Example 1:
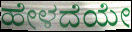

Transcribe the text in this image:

ಹೇಳದೆಯೇ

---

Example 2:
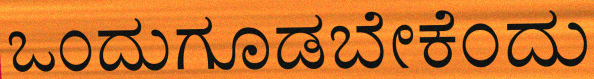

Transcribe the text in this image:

ಒಂದುಗೂಡಬೇಕೆಂದು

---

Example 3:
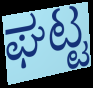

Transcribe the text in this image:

ಘಟ್ಟ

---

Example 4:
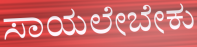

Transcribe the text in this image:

ಸಾಯಲೇಬೇಕು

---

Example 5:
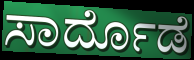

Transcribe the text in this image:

ಸಾರ್ದೊಡೆ